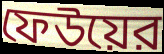
ফেউয়ের